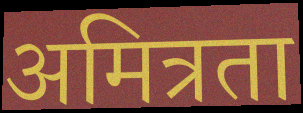
अमित्रता